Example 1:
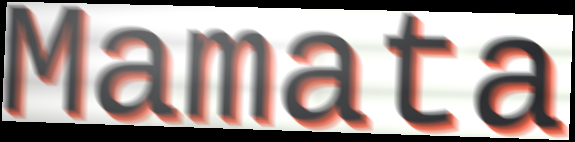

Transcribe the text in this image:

Mamata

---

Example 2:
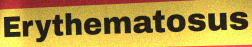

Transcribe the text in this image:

Erythematosus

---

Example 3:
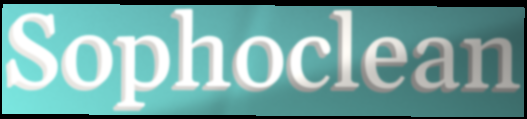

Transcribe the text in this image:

Sophoclean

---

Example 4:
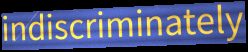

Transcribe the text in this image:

indiscriminately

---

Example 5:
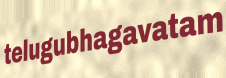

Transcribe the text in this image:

telugubhagavatam